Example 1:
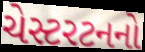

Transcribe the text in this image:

ચેસ્ટરટનનો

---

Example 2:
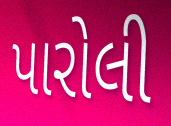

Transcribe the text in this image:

પારોલી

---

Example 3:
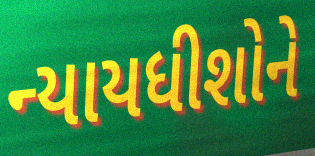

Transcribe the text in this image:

ન્યાયધીશોને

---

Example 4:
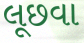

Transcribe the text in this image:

લૂછવા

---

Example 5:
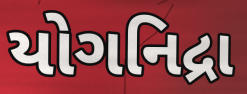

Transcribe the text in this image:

યોગનિદ્રા